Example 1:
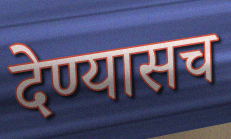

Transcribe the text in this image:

देण्यासच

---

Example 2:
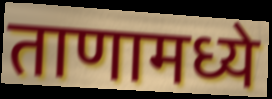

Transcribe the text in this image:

ताणामध्ये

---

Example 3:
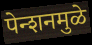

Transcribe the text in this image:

पेन्शनमुळे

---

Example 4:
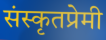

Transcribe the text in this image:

संस्कृतप्रेमी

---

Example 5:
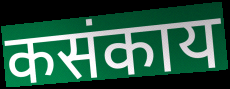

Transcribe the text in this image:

कसंकाय